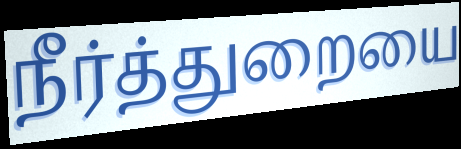
நீர்த்துறையை